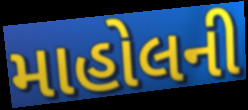
માહોલની